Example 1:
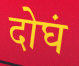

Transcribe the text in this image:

दोघं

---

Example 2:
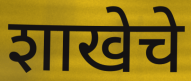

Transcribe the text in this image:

शाखेचे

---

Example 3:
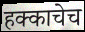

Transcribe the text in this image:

हक्काचेच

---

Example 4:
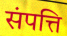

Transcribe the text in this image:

संपत्ति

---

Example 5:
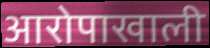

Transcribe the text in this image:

आरोपाखाली